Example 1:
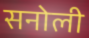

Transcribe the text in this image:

सनोली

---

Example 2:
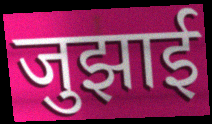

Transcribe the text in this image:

जुझाई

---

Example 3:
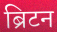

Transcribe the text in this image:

ब्रिटन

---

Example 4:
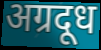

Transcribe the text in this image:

अग्रदूध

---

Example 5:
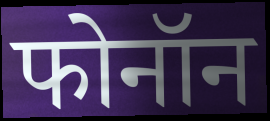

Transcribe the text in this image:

फोनॉन